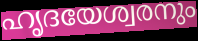
ഹൃദയേശ്വരനും